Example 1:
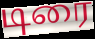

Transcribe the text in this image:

டிரை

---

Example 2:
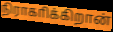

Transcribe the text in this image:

நிராகரிக்கிறான்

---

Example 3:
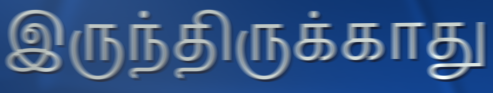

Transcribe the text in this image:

இருந்திருக்காது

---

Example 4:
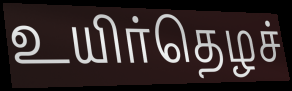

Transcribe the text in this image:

உயிர்தெழச்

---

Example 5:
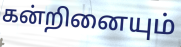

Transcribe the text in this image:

கன்றினையும்